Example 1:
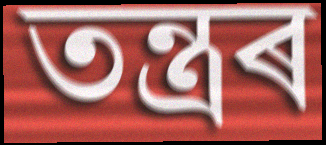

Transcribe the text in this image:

তন্ত্ৰৰ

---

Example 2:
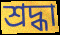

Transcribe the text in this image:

শ্ৰদ্ধা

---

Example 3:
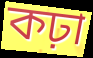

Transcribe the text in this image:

কঢ়া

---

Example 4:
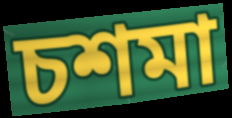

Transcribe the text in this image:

চশমা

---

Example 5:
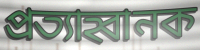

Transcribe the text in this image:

প্ৰত্যাহ্বানক